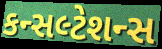
કન્સલ્ટેશન્સ